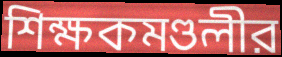
শিক্ষকমণ্ডলীর